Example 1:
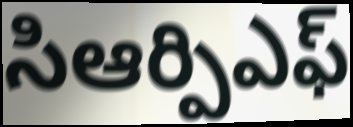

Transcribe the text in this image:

సిఆర్పిఎఫ్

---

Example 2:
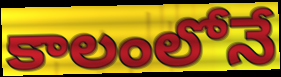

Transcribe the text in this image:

కాలంలోనే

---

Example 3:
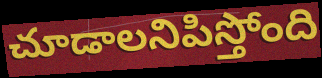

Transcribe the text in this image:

చూడాలనిపిస్తోంది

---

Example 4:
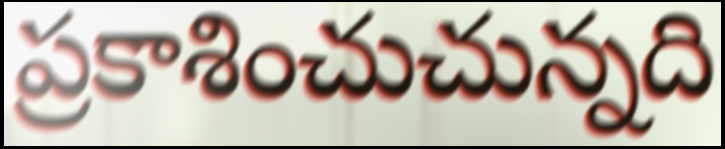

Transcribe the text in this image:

ప్రకాశించుచున్నది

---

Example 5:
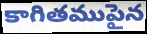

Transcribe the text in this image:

కాగితముపైన